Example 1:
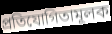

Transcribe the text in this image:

প্রতিযোগিতামূলক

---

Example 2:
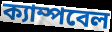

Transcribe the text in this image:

ক্যাম্পবেল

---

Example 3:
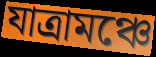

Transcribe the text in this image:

যাত্রামঞ্চে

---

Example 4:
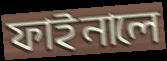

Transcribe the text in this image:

ফাইনালে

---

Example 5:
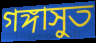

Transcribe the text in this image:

গঙ্গাসুত